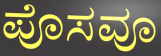
ಪೊಸವೂ